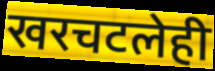
खरचटलेही